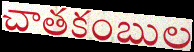
చాతకంబుల